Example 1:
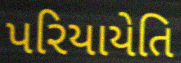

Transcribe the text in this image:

પરિયાયેતિ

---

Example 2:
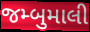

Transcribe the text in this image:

જમ્બુમાલી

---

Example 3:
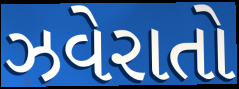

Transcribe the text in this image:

ઝવેરાતો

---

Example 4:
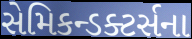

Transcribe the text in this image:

સેમિકન્ડક્ટર્સના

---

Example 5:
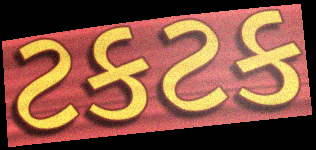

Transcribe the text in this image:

ટકટક